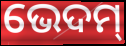
ଭେଦମ୍